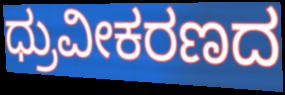
ಧ್ರುವೀಕರಣದ